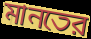
মানতের